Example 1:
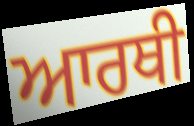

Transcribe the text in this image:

ਆਰਥੀ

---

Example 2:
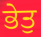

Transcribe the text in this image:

ਭੇਤੁ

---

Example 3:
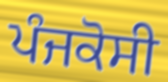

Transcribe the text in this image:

ਪੰਜਕੋਸੀ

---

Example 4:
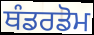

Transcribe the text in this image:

ਥੰਡਰਡੋਮ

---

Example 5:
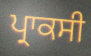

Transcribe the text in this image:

ਪ੍ਰਾਕਸੀ